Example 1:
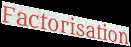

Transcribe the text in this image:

Factorisation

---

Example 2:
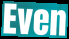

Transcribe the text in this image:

Even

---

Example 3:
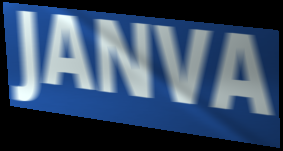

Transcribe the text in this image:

JANVA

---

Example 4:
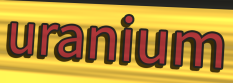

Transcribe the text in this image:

uranium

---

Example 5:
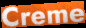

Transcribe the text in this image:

Creme